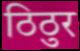
ठिठुर